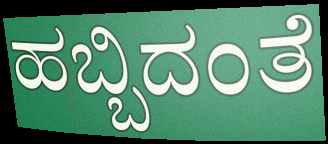
ಹಬ್ಬಿದಂತೆ